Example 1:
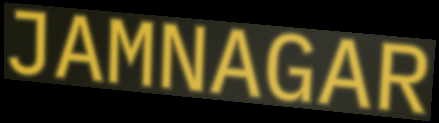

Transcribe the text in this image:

JAMNAGAR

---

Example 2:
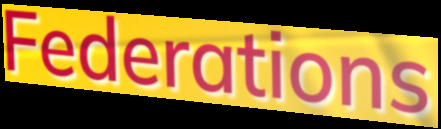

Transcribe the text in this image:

Federations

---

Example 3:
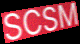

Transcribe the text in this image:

SCSM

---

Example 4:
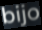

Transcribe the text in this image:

bijo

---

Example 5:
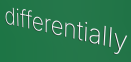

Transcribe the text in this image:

differentially